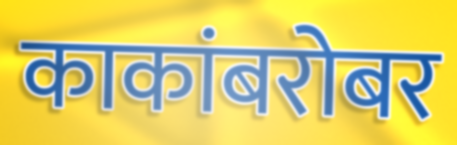
काकांबरोबर